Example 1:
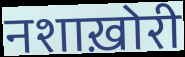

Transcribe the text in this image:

नशाख़ोरी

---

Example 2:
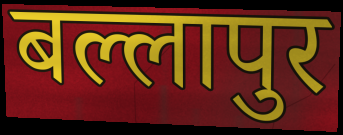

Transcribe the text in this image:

बल्लापुर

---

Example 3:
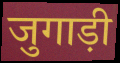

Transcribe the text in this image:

जुगाड़ी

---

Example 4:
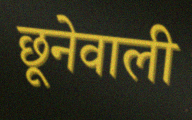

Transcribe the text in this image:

छूनेवाली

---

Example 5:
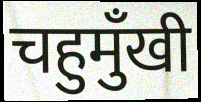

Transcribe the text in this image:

चहुमुँखी